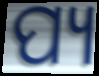
ପ୍ୟ